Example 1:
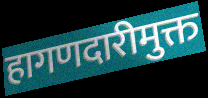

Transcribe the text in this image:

हागणदारीमुक्त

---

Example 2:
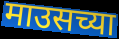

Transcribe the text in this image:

माउसच्या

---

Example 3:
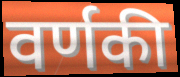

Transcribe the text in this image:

वर्णकी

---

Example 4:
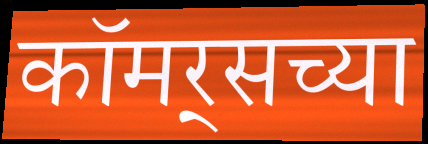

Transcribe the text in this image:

कॉमर्सच्या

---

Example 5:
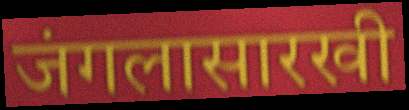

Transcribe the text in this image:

जंगलासारखी